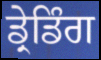
ਡ੍ਰੇਡਿੰਗ